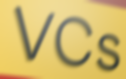
VCs